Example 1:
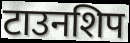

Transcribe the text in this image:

टाउनशिप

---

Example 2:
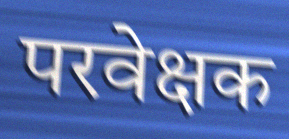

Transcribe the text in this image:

परवेक्षक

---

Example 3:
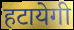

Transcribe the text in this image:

हटायेगी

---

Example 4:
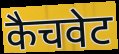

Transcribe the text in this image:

कैचवेट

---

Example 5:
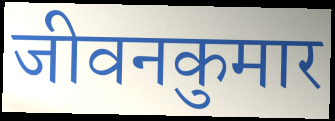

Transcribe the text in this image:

जीवनकुमार